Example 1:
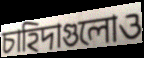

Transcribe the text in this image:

চাহিদাগুলোও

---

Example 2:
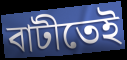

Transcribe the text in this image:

বাটীতেই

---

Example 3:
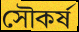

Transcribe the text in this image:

সৌকর্ষ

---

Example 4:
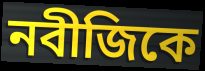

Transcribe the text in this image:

নবীজিকে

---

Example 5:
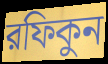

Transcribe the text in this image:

রফিকুন